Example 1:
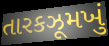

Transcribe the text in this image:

તારકઝૂમખું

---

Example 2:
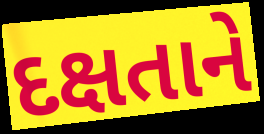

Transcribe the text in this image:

દક્ષતાને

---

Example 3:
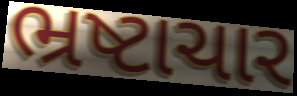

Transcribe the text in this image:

ભ્રષ્ટાચાર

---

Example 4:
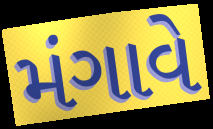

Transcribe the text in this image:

મંગાવે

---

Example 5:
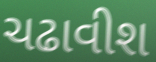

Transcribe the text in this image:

ચઢાવીશ